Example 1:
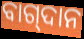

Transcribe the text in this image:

ବାଗ୍‍ଦାନ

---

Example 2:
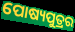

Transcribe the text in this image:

ପୋଷ୍ୟପୁତ୍ରର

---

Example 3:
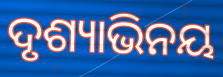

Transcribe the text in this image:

ଦୃଶ୍ୟାଭିନୟ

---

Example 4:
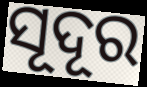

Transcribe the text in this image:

ସୂଦୂର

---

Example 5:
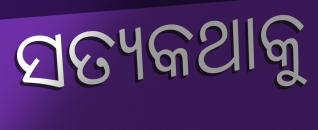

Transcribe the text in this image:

ସତ୍ୟକଥାକୁ